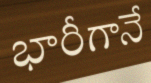
భారీగానే